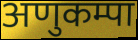
अणुकम्पा